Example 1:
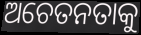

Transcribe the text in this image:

ଅଚେତନତାକୁ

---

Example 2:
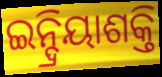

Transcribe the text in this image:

ଇନ୍ଦ୍ରିୟାଶକ୍ତି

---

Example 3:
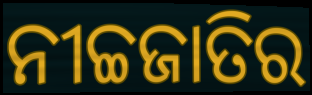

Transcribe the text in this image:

ନୀଚ୍ଚଜାତିର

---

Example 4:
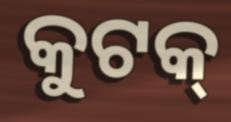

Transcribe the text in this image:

କୁଟକ୍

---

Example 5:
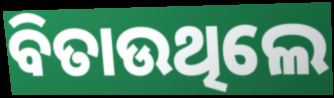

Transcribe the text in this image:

ବିତାଉଥିଲେ